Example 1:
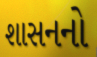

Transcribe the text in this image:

શાસનનો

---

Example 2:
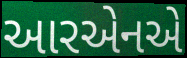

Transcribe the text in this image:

આરએનએ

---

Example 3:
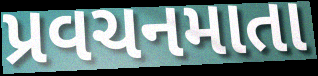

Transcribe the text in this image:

પ્રવચનમાતા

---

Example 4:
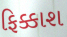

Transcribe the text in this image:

ફિક્કાશ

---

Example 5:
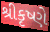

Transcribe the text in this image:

શ્રીકૃષ્ણે